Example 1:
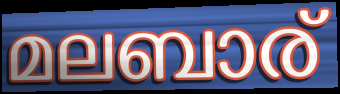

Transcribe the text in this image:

മലബാര്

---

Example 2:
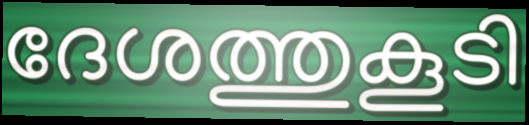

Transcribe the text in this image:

ദേശത്തുകൂടി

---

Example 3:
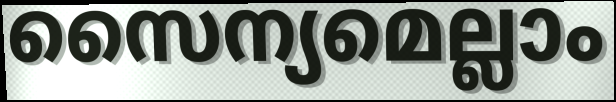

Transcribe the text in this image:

സൈന്യമെല്ലാം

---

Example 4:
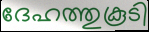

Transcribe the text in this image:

ദേഹത്തുകൂടി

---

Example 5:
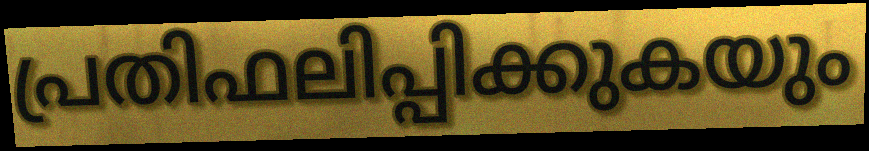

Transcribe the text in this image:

പ്രതിഫലിപ്പിക്കുകയും